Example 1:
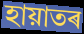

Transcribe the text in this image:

হায়াতৰ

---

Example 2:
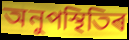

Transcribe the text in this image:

অনুপস্থিতিৰ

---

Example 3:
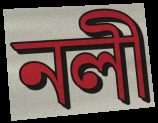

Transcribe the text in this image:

নলী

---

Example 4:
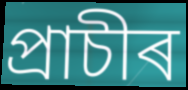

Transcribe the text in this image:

প্ৰাচীৰ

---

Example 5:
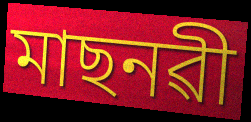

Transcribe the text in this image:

মাছনৱী